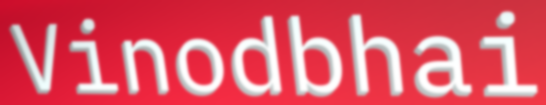
Vinodbhai